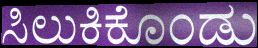
ಸಿಲುಕಿಕೊಂಡು